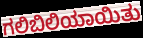
ಗಲಿಬಿಲಿಯಾಯಿತು